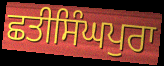
ਛਤੀਸਿੰਘਪੁਰਾ